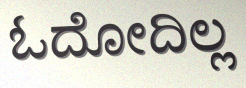
ಓದೋದಿಲ್ಲ